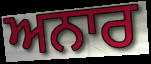
ਅਨਾਰ